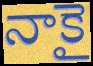
నాకై